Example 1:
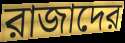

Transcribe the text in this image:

রাজাদের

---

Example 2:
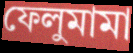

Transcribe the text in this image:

ফেলুমামা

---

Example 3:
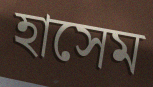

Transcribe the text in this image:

হাসেম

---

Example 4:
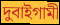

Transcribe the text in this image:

দুবাইগামী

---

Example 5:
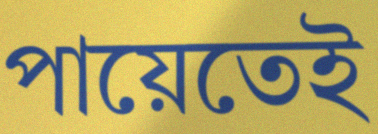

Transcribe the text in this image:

পায়েতেই